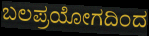
ಬಲಪ್ರಯೋಗದಿಂದ